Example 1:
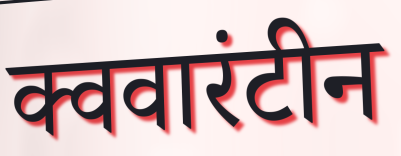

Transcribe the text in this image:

क्ववारंटीन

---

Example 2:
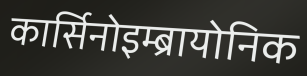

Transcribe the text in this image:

कार्सिनोइम्ब्रायोनिक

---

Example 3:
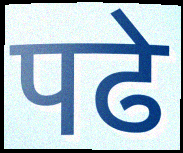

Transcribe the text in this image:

पढे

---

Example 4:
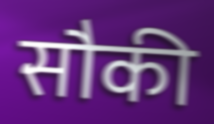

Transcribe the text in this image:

सौकी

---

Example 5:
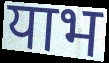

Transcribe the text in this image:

याभ